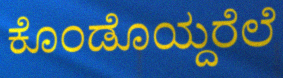
ಕೊಂಡೊಯ್ದರೆಲೆ